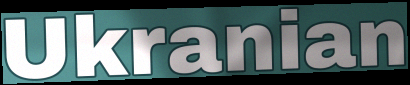
Ukranian